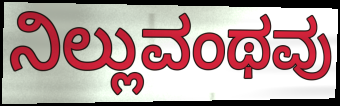
ನಿಲ್ಲುವಂಥವು